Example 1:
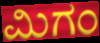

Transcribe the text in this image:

ಮಿಗಂ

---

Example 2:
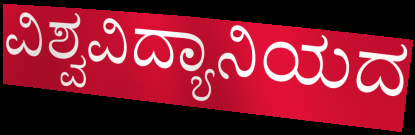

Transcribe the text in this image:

ವಿಶ್ವವಿದ್ಯಾನಿಯದ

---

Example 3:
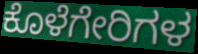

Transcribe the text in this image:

ಕೊಳೆಗೇರಿಗಳ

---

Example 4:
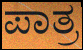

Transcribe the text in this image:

ಪಾತ್ರ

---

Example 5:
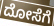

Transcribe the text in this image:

ದೋಸೆಗೆ